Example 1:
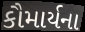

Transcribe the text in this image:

કૌમાર્યના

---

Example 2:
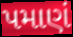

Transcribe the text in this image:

પમાણં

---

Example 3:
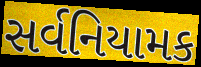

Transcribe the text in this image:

સર્વનિયામક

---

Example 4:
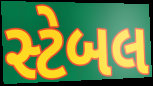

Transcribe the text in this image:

સ્ટેબલ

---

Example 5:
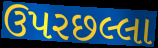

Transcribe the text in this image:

ઉપરછલ્લા